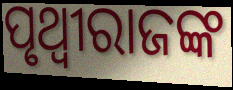
ପୃଥ୍ୱୀରାଜଙ୍କ